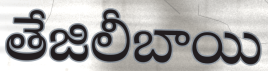
తేజిలీబాయి